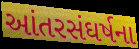
આંતરસંઘર્ષના